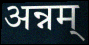
अन्नम्